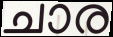
ചാര